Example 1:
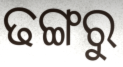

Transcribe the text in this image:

ଢଙ୍ଗରୁ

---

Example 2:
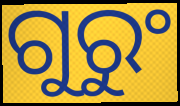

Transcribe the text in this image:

ଗୁରୁଂ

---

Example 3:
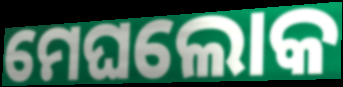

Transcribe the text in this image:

ମେଘଲୋକ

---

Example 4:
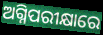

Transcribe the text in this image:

ଅଗ୍ନିପରୀକ୍ଷାରେ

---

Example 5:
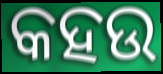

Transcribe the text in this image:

କହଉ